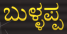
ಬುಳ್ಳಪ್ಪ